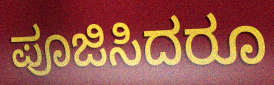
ಪೂಜಿಸಿದರೂ